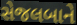
સેજલબાને